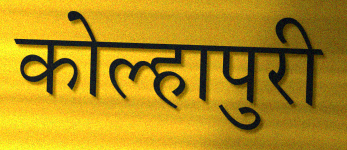
कोल्हापुरी